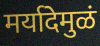
मर्यादेमुळं